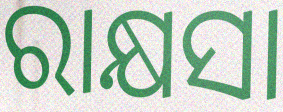
ରାକ୍ଷସା